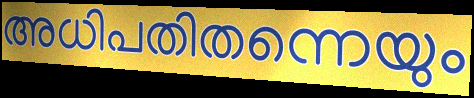
അധിപതിതന്നെയും